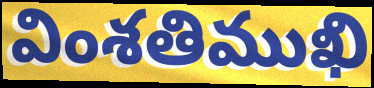
వింశతిముఖి